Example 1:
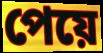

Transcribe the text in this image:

পেয়ে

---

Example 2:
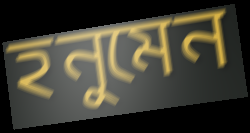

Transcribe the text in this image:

হনুমেন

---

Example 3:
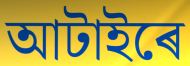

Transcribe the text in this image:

আটাইৰে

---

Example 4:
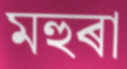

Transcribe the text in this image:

মহুৰা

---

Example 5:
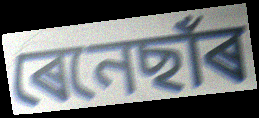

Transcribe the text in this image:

ৰেনেছাঁৰ